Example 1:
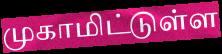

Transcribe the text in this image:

முகாமிட்டுள்ள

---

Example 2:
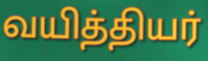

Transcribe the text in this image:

வயித்தியர்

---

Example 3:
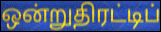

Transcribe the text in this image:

ஒன்றுதிரட்டிப்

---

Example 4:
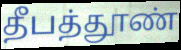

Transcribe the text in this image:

தீபத்தூண்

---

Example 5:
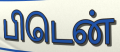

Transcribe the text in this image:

பிடென்